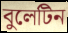
বুলেটিন